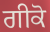
ਗੀਕੋ